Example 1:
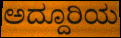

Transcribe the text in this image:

ಅದ್ದೂರಿಯ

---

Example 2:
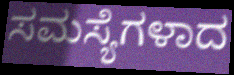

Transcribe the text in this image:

ಸಮಸ್ಯೆಗಳಾದ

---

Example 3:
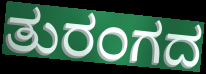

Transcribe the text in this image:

ತುರಂಗದ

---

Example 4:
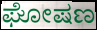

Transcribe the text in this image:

ಘೋಷಣ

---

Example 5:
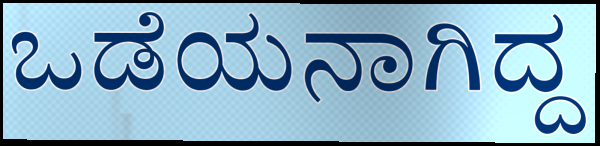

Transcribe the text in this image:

ಒಡೆಯನಾಗಿದ್ದ